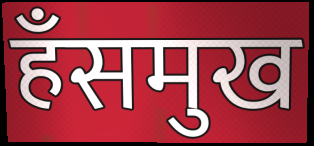
हँसमुख